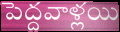
పెద్దవాళ్లయి